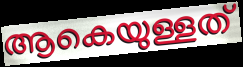
ആകെയുള്ളത്